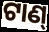
ଟାଣ୍